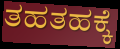
ತಹತಹಕ್ಕೆ